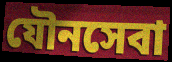
যৌনসেবা